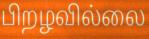
பிறழவில்லை